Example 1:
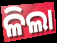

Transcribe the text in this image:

ଳିଲା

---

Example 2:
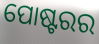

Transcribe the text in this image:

ପୋଷ୍ଟରର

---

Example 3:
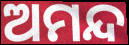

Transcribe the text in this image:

ଅମନ୍ଦ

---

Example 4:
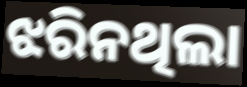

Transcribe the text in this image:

ଝରିନଥିଲା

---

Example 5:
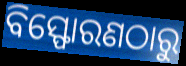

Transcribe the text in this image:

ବିସ୍ଫୋରଣଠାରୁ